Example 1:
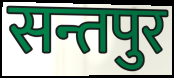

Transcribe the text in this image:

सन्तपुर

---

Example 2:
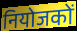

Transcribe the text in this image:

नियोजकों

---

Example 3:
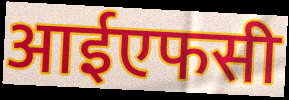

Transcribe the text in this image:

आईएफसी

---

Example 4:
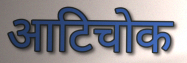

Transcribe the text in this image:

आटिचोक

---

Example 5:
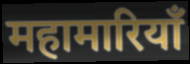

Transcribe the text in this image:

महामारियाँ